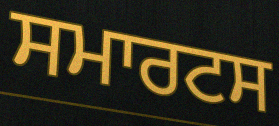
ਸਮਾਰਟਸ